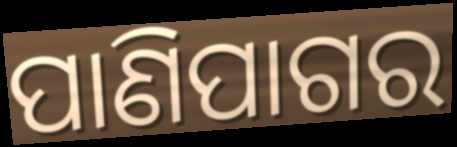
ପାଣିପାଗର